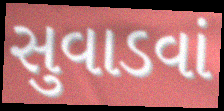
સુવાડવાં